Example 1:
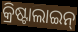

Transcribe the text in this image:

କ୍ରିଷ୍ଟାଲାଇନ୍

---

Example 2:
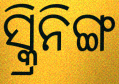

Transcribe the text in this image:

ସ୍କ୍ରିନିଙ୍ଗ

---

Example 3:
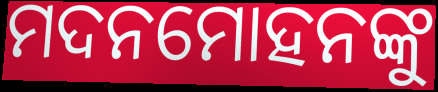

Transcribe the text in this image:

ମଦନମୋହନଙ୍କୁ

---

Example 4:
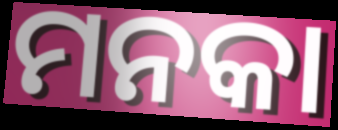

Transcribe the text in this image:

ମନକା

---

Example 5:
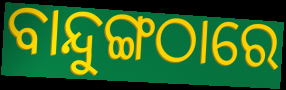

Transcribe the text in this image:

ବାନ୍ଦୁଙ୍ଗଠାରେ